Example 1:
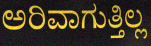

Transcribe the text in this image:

ಅರಿವಾಗುತ್ತಿಲ್ಲ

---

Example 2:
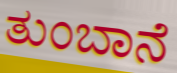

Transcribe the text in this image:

ತುಂಬಾನೆ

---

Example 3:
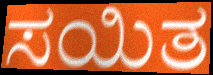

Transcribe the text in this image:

ಸಯಿತ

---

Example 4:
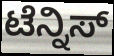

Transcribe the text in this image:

ಟೆನ್ನಿಸ್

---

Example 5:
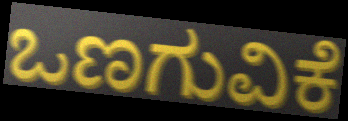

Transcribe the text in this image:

ಒಣಗುವಿಕೆ